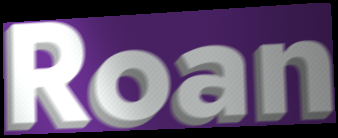
Roan